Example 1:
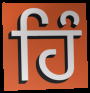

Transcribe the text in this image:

ਹਿੰ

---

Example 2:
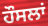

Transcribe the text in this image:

ਹੌਸਲਾਂ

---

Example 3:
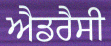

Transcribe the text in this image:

ਐਡਰੈਸੀ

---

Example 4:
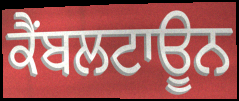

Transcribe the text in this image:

ਕੈਂਬਲਟਾਊਨ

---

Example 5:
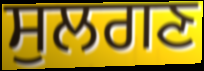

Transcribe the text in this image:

ਸੁਲਗਣ